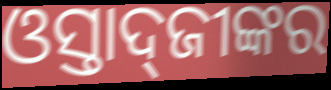
ଓସ୍ତାଦ୍‌ଜୀଙ୍କର